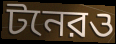
টনেরও